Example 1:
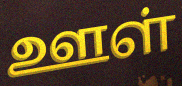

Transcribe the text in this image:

ஊள்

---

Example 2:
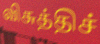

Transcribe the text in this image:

விசுத்திச்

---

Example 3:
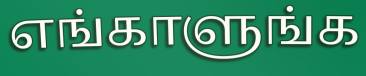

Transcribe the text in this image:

எங்காளுங்க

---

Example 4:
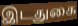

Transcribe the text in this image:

இடதுகை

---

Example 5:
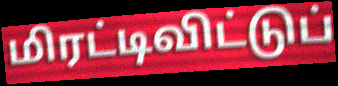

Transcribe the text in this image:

மிரட்டிவிட்டுப்